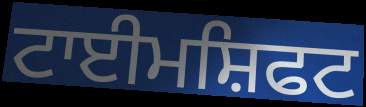
ਟਾਈਮਸ਼ਿਫਟ